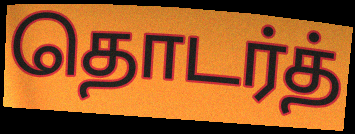
தொடர்த்